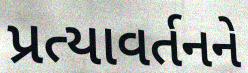
પ્રત્યાવર્તનને